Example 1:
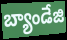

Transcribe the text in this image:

బ్యాండేజి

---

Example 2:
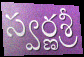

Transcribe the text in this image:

స్వర్ణశ్రీ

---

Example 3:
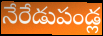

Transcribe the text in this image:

నేరేడుపండ్ల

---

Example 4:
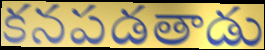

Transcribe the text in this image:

కనపడతాడు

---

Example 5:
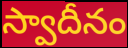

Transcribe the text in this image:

స్వాదీనం